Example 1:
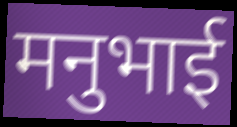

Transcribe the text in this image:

मनुभाई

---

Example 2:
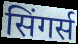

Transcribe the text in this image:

सिंगर्स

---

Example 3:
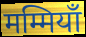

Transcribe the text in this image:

मम्मियाँ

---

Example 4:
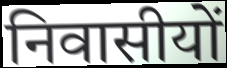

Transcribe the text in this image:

निवासीयों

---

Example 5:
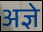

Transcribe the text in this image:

अज्ञे